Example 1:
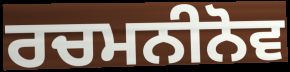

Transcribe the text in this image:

ਰਚਮਨੀਨੋਵ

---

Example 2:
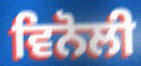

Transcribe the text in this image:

ਵਿਨੋਲੀ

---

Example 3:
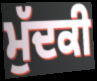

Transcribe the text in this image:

ਮੁੱਦਕੀ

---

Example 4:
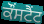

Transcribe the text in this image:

ਕੌਂਸਟੈਂਟ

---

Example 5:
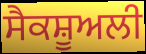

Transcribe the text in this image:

ਸੈਕਸ਼ੂਅਲੀ